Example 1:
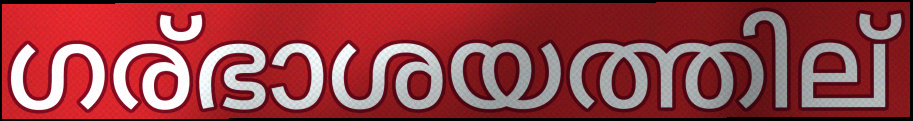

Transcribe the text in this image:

ഗര്ഭാശയത്തില്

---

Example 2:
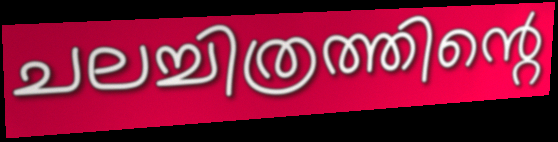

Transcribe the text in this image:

ചലച്ചിത്രത്തിന്റെ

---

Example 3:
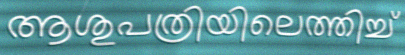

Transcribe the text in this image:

ആശുപത്രിയിലെത്തിച്ച്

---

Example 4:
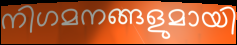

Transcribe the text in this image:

നിഗമനങ്ങളുമായി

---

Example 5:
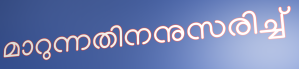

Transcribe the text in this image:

മാറുന്നതിനനുസരിച്ച്